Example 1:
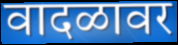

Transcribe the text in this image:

वादळावर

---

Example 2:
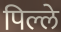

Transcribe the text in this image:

पिल्ले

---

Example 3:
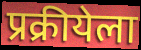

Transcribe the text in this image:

प्रक्रीयेला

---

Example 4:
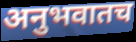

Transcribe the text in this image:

अनुभवातच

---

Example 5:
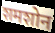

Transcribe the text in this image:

शमशोन